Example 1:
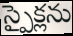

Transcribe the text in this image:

స్పైక్లను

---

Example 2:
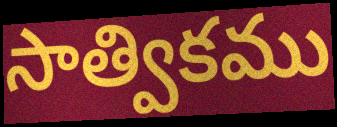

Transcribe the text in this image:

సాత్వికము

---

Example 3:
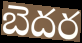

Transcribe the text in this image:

బెదర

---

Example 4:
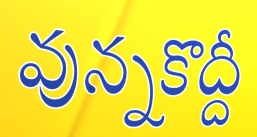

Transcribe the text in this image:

వున్నకొద్దీ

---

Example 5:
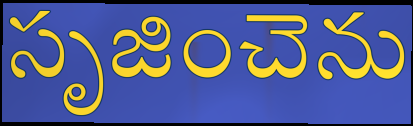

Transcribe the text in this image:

సృజించెను